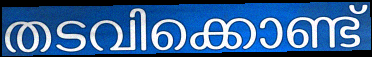
തടവിക്കൊണ്ട്